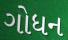
ગોધન